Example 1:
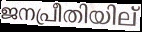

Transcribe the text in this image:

ജനപ്രീതിയില്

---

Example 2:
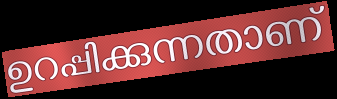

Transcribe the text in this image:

ഉറപ്പിക്കുന്നതാണ്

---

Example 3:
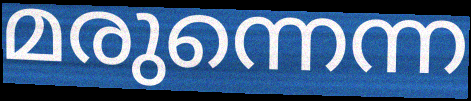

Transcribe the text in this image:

മരുന്നെന്ന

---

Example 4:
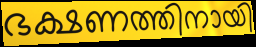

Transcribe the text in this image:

ഭക്ഷണത്തിനായി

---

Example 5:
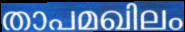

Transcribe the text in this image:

താപമഖിലം